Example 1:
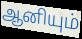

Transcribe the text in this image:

ஆனியும்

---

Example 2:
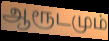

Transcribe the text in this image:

ஆரூடமும்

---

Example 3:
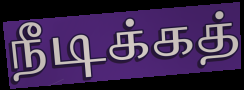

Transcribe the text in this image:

நீடிக்கத்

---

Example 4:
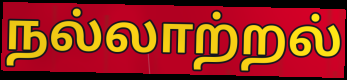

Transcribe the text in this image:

நல்லாற்றல்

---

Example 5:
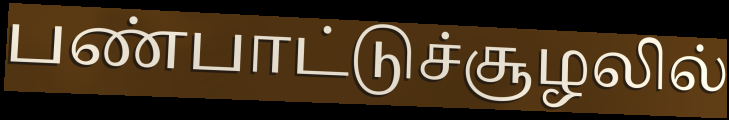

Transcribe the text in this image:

பண்பாட்டுச்சூழலில்